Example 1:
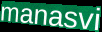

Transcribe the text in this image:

manasvi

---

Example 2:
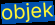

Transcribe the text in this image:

objek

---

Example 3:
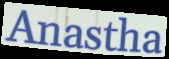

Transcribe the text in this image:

Anastha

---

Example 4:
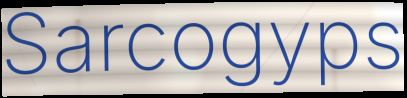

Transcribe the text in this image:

Sarcogyps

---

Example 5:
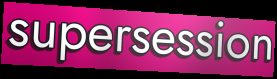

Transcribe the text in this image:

supersession